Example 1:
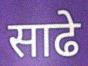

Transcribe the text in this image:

साढे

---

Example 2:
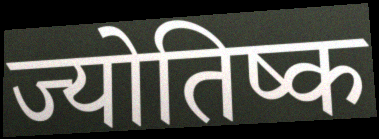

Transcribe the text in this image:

ज्योतिष्क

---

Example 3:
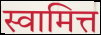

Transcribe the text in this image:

स्वामित्त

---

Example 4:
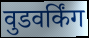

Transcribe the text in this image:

वुडवर्किंग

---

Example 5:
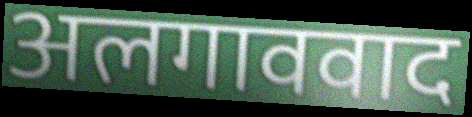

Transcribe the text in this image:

अलगाववाद